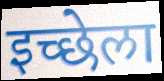
इच्छेला